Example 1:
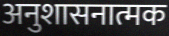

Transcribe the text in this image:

अनुशासनात्मक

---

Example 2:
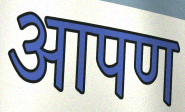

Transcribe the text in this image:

आपण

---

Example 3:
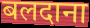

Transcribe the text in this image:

बलदाना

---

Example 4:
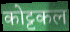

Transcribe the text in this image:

कोट्टकल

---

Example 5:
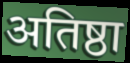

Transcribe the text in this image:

अतिष्ठा